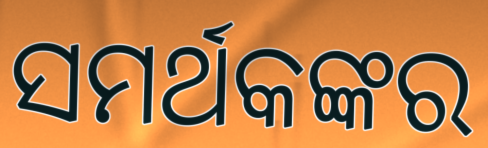
ସମର୍ଥକଙ୍କର